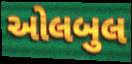
ઓલબુલ